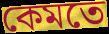
কেমতে